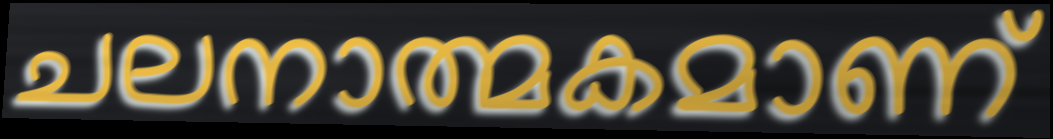
ചലനാത്മകമാണ്